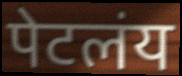
पेटलंय